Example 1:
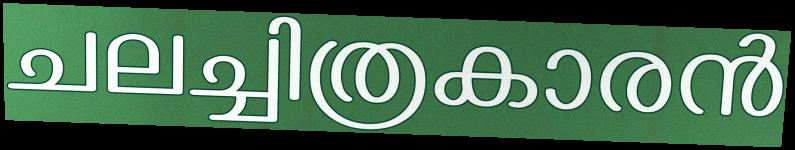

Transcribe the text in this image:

ചലച്ചിത്രകാരൻ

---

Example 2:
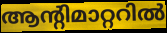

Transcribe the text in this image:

ആന്റിമാറ്ററിൽ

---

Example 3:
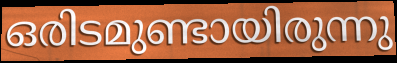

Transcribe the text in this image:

ഒരിടമുണ്ടായിരുന്നു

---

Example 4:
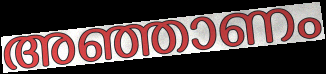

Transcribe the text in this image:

അഞ്ഞാണം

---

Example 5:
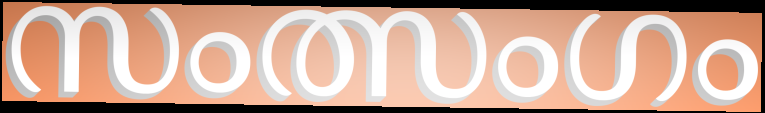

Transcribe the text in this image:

സംത്സംഗം